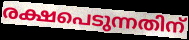
രക്ഷപെടുന്നതിന്